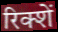
रिक्शें